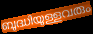
ബുദ്ധിയുള്ളവരും